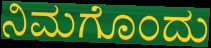
ನಿಮಗೊಂದು